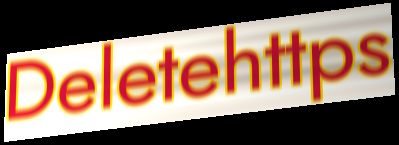
Deletehttps